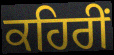
ਕਹਿਰੀਂ